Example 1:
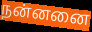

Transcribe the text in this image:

நன்னனை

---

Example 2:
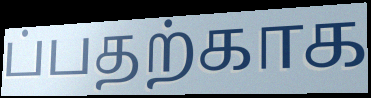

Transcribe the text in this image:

ப்பதற்காக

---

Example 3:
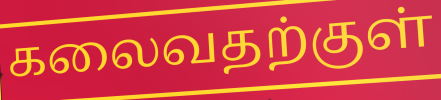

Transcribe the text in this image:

கலைவதற்குள்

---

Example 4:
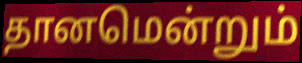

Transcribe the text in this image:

தானமென்றும்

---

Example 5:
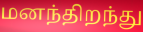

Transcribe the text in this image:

மனந்திறந்து